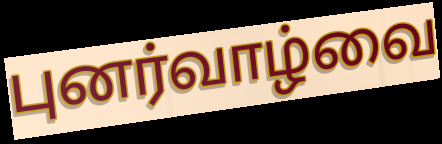
புனர்வாழ்வை